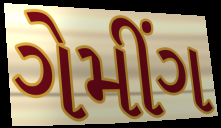
ગેમીંગ